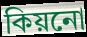
কিয়নো